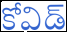
కోవిడ్